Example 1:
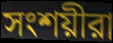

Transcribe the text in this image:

সংশয়ীরা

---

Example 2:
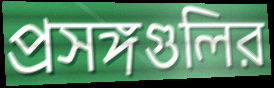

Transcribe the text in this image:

প্রসঙ্গগুলির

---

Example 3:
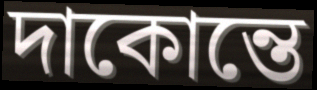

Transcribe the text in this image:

দাকোন্তে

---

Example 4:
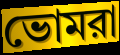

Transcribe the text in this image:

ভোমরা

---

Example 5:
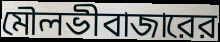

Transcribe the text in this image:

মৌলভীবাজারের